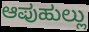
ಆಪುಹುಲ್ಲು